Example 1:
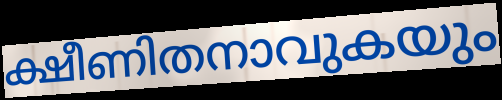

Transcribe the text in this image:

ക്ഷീണിതനാവുകയും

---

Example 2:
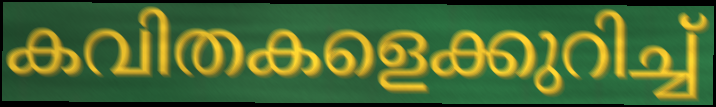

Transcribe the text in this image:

കവിതകളെക്കുറിച്ച്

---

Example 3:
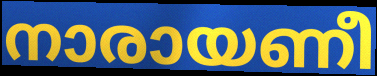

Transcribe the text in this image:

നാരായണീ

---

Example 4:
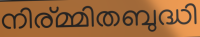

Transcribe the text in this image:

നിര്മ്മിതബുദ്ധി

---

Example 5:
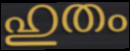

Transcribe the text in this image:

ഹുതം